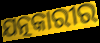
ଯତ୍ନକାରୀର